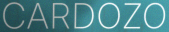
CARDOZO